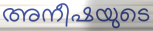
അനീഷയുടെ